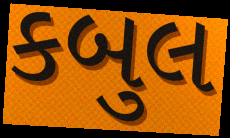
કબુલ